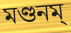
মণ্ডনম্